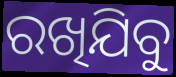
ରଖିଯିବୁ